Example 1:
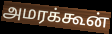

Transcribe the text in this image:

அமரக்கூன்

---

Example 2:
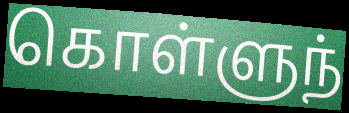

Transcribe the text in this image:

கொள்ளுந்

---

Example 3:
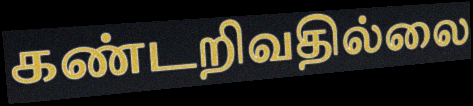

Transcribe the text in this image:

கண்டறிவதில்லை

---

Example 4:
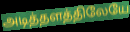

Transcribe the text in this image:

அடித்தளத்திலேயே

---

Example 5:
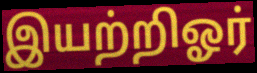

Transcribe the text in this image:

இயற்றிஓர்